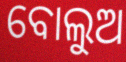
ବୋଲୁଅ